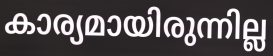
കാര്യമായിരുന്നില്ല